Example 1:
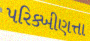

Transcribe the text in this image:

પરિક્ખીણત્તા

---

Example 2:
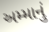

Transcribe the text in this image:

અમ્માનું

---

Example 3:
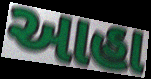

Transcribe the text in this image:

આહા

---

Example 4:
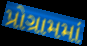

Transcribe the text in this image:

પ્રોગ્રામમાં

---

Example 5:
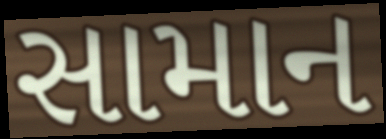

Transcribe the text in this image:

સામાન